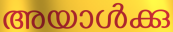
അയാൾക്കു